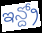
ఇన్ద్రో